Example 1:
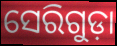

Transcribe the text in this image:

ସେରିଗୁଡ଼ା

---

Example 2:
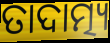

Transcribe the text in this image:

ତାଦାତ୍ମ୍ୟ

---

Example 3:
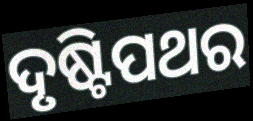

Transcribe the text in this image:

ଦୃଷ୍ଟିପଥର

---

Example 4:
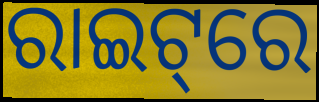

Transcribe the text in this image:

ରାଇଟ୍‌ରେ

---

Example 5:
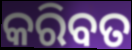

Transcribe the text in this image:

କରିବତ